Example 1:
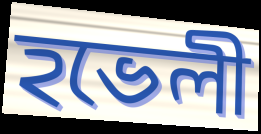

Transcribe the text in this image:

হভেলী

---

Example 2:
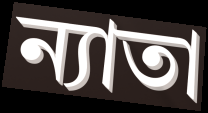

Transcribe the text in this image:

ন্যাতা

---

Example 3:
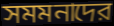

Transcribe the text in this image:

সমমনাদের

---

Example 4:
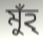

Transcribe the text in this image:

মুঁহ্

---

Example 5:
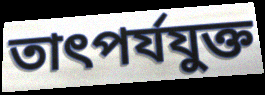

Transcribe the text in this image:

তাৎপর্যযুক্ত